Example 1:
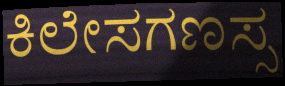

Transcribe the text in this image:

ಕಿಲೇಸಗಣಸ್ಸ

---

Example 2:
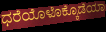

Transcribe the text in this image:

ಧರೆಯೊಳೊಕ್ಕೊಡೆಯಾ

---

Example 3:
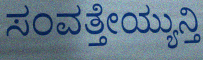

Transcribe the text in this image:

ಸಂವತ್ತೇಯ್ಯುನ್ತಿ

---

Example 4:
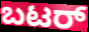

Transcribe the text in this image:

ಬಟರ್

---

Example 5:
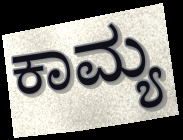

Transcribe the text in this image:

ಕಾಮ್ಯ